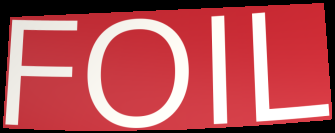
FOIL